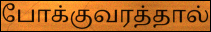
போக்குவரத்தால்